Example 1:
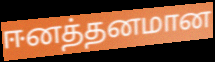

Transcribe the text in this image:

ஈனத்தனமான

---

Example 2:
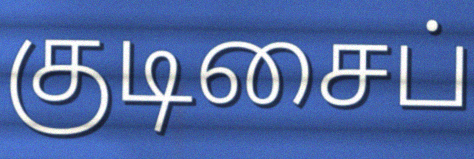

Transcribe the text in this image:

குடிசைப்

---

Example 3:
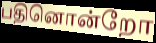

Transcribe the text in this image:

பதினொன்றோ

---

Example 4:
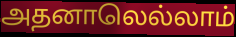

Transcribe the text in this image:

அதனாலெல்லாம்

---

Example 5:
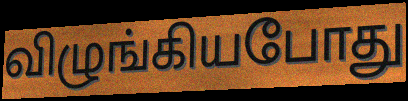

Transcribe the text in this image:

விழுங்கியபோது